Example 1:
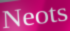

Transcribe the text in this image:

Neots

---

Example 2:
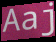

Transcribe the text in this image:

Aaj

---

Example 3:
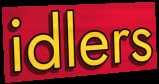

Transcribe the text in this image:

idlers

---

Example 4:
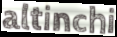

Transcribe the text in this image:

altinchi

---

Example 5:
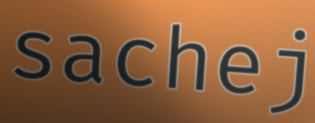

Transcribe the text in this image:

sachej